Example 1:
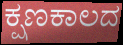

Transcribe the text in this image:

ಕ್ಷಣಕಾಲದ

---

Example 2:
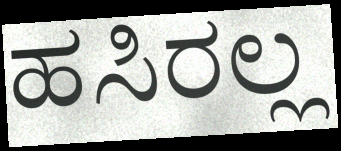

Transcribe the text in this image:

ಹಸಿರಲ್ಲ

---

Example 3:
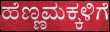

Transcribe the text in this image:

ಹೆಣ್ಣಮಕ್ಕಳಿಗೆ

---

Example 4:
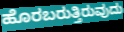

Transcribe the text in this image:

ಹೊರಬರುತ್ತಿರುವುದು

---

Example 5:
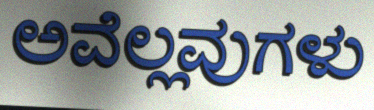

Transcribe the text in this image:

ಅವೆಲ್ಲವುಗಳು